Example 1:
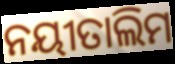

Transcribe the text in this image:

ନୟୀତାଲିମ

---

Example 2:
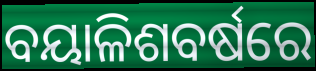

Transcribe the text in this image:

ବୟାଳିଶବର୍ଷରେ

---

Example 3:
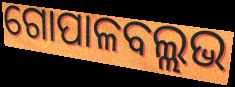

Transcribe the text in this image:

ଗୋପାଳବଲ୍ଲଭ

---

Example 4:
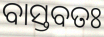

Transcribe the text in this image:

ବାସ୍ତବତଃ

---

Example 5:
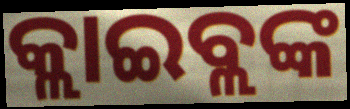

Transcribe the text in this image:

କ୍ଲାଇବ୍ଲଙ୍କ